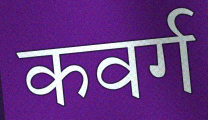
कवर्ग